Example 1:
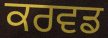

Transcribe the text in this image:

ਕਰਵਡ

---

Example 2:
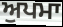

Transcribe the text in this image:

ਅੁਪਮਾ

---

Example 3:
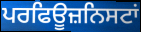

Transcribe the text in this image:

ਪਰਫਿਊਜ਼ਨਿਸਟਾਂ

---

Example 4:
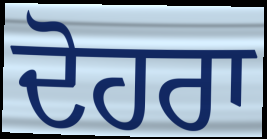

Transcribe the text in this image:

ਦੋਹਰਾ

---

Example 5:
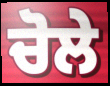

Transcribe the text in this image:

ਚੋਲੇ